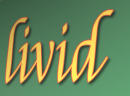
livid